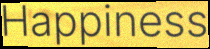
Happiness